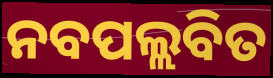
ନବପଲ୍ଲବିତ